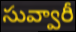
సువ్వారీ